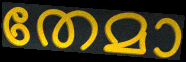
തേമാ